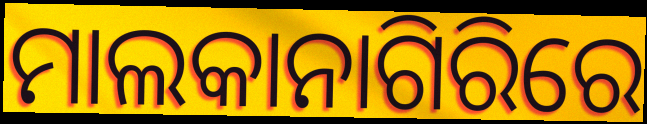
ମାଲକାନାଗିରିରେ